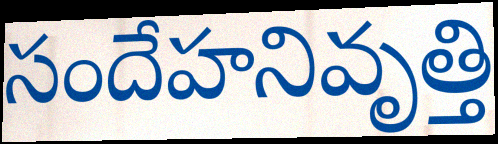
సందేహనివృత్తి